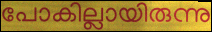
പോകില്ലായിരുന്നു